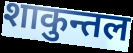
शाकुन्तल